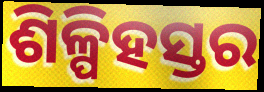
ଶିଳ୍ପିହସ୍ତର